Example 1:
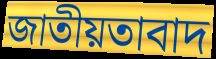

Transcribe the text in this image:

জাতীয়তাবাদ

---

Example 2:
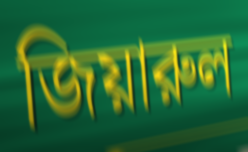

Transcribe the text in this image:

জিয়ারুল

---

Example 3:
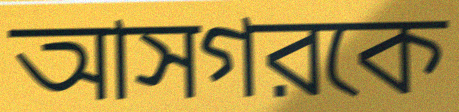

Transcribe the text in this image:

আসগরকে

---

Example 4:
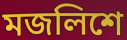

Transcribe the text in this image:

মজলিশে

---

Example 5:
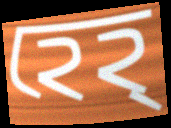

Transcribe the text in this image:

হেহ্